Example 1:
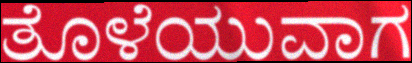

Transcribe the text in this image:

ತೊಳೆಯುವಾಗ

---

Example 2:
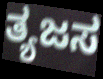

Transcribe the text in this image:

ತ್ಯಜಸ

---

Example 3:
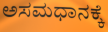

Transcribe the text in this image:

ಅಸಮಧಾನಕ್ಕೆ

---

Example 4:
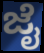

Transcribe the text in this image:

ಜೈ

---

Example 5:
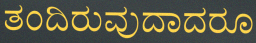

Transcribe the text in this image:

ತಂದಿರುವುದಾದರೂ